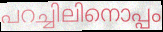
പറച്ചിലിനൊപ്പം